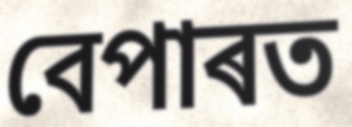
বেপাৰত